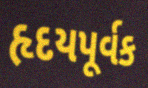
હૃદયપૂર્વક